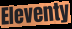
Eleventy